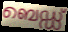
ബെഡ്ഡ്